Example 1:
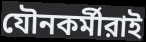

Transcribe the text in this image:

যৌনকর্মীরাই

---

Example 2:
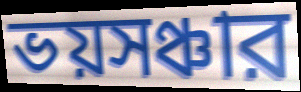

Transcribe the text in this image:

ভয়সঞ্চার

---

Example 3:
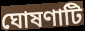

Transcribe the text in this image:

ঘোষণাটি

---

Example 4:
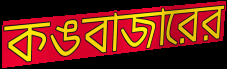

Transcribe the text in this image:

কঙবাজারের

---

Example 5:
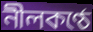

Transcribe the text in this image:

নীলকণ্ঠে